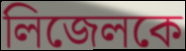
লিজেলকে